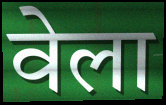
वेला